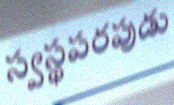
స్వస్థపరపుడు